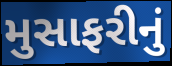
મુસાફરીનું